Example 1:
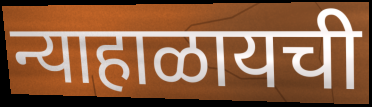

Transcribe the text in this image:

न्याहाळायची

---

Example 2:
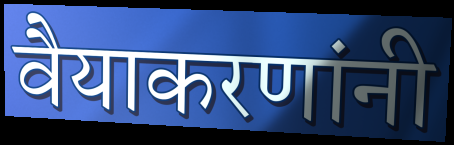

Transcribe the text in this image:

वैयाकरणांनी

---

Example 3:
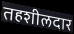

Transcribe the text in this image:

तहशीलदार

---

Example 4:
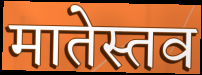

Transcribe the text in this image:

मातेस्तव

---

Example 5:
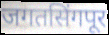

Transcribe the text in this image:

जगतसिंगपूर